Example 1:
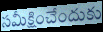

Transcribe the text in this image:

సమీక్షించేందుకు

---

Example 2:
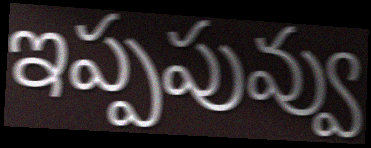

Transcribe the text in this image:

ఇప్పపువ్వు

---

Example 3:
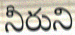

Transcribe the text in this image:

నీరుని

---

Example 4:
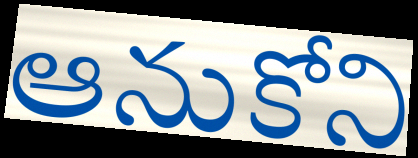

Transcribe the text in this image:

ఆనుకోని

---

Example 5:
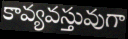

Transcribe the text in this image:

కావ్యవస్తువుగా